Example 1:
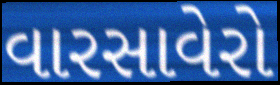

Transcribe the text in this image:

વારસાવેરો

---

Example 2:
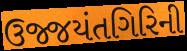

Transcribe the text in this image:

ઉજ્જયંતગિરિની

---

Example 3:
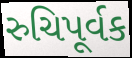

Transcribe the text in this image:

રુચિપૂર્વક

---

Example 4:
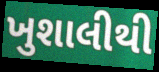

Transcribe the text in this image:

ખુશાલીથી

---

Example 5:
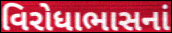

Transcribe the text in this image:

વિરોધાભાસનાં